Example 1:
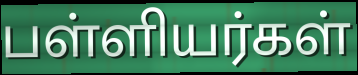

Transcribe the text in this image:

பள்ளியர்கள்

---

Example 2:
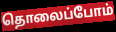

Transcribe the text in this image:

தொலைப்போம்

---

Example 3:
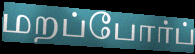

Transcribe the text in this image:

மறப்போர்ப்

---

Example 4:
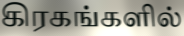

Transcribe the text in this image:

கிரகங்களில்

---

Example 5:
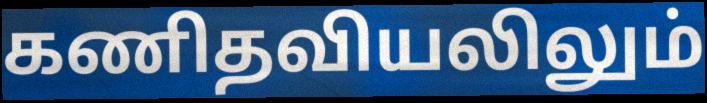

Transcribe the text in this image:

கணிதவியலிலும்